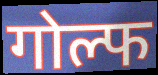
गोल्फ